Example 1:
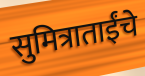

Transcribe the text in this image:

सुमित्राताईंचे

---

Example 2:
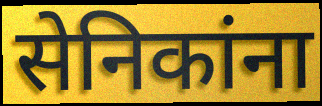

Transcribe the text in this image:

सेनिकांना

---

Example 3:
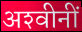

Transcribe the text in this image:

अश्वीनीं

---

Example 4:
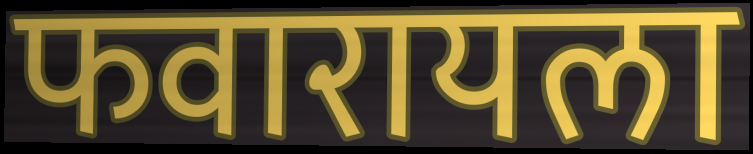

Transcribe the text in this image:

फवारायला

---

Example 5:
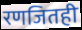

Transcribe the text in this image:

रणजितही